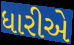
ધારીએ